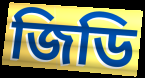
জিডি